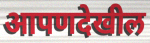
आपणदेखील